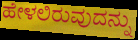
ಹೇಳಲಿರುವುದನ್ನು